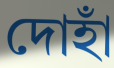
দোহাঁ